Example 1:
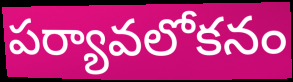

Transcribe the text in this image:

పర్యావలోకనం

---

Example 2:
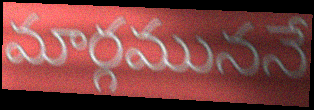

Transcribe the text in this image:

మార్గముననే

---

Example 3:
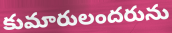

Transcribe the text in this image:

కుమారులందరును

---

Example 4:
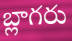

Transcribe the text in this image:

బ్లాగరు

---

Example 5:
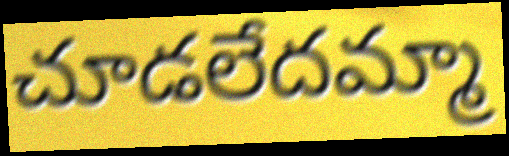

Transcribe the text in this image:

చూడలేదమ్మా